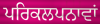
ਪਰਿਕਲਪਨਾਵਾਂ